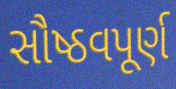
સૌષ્ઠવપૂર્ણ